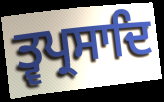
ਤ੍ਵਪ੍ਰਸਾਦਿ